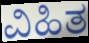
ವಿಹಿತ